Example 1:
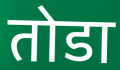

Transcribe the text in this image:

तोडा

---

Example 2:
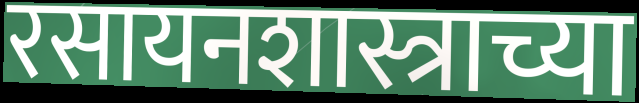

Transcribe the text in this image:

रसायनशास्त्राच्या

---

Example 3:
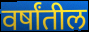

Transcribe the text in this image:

वर्षांतील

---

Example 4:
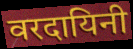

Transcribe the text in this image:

वरदायिनी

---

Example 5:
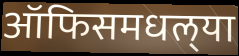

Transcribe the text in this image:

ऑफिसमधल्या